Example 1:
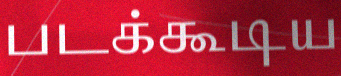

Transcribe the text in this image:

படக்கூடிய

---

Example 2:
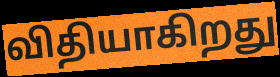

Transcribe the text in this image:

விதியாகிறது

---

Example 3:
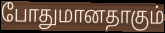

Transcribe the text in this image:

போதுமானதாகும்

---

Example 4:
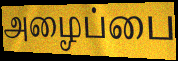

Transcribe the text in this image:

அழைப்பை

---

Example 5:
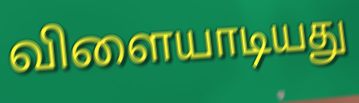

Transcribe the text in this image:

விளையாடியது